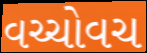
વચ્ચોવચ